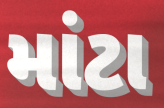
માંટા